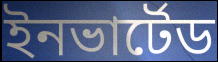
ইনভার্টেড